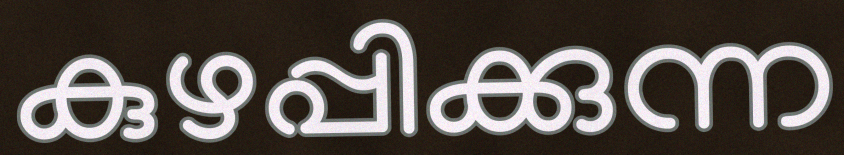
കുഴപ്പിക്കുന്ന